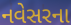
નવેસરના